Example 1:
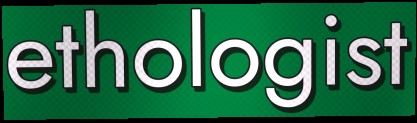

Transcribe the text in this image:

ethologist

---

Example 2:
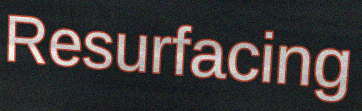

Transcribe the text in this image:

Resurfacing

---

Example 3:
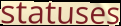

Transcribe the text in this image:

statuses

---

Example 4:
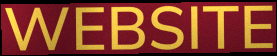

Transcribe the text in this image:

WEBSITE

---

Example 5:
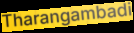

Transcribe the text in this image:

Tharangambadi